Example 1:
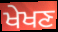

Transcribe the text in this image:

ਖੇਖਣ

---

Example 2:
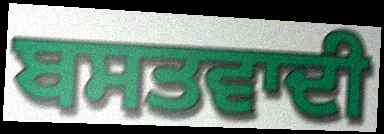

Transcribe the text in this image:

ਬਸਤਵਾਦੀ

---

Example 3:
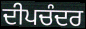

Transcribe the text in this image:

ਦੀਪਚੰਦਰ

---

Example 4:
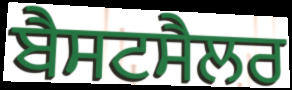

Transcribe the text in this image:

ਬੈਸਟਸੈਲਰ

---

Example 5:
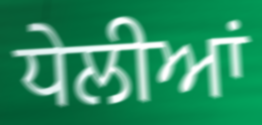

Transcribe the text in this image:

ਧੇਲੀਆਂ